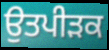
ਉਤਪੀੜਕ